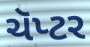
ચૅપ્ટર